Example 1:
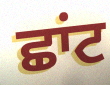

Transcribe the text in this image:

ਛਾਂਟ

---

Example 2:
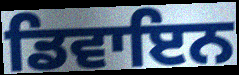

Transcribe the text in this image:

ਡਿਵਾਇਨ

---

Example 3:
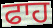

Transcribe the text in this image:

ਫਾਹ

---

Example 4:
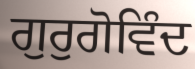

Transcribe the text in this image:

ਗੁਰੁਗੋਵਿੰਦ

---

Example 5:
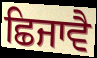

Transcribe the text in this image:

ਛਿਜਾਵੈ